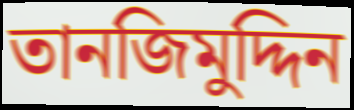
তানজিমুদ্দিন